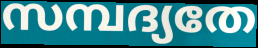
സമ്പദ്യതേ